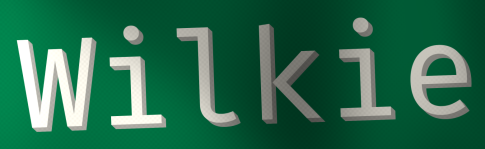
Wilkie